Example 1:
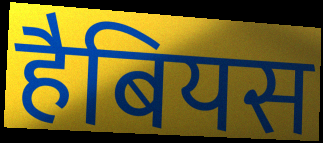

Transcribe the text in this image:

हैबियस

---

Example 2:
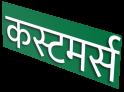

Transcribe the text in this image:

कस्टमर्स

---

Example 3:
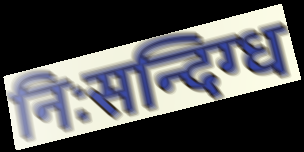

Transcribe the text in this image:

निःसन्दिग्ध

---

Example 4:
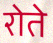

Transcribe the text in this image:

रोते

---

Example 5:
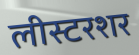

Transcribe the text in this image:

लीस्टरशर